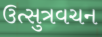
ઉત્સુત્રવચન